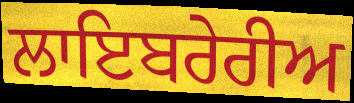
ਲਾਇਬਰੇਰੀਅ